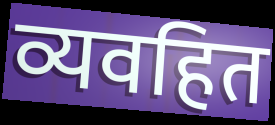
व्यवहित